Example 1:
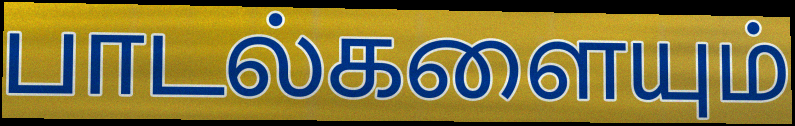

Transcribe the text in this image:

பாடல்களையும்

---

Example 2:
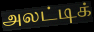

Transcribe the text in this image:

அலட்டிக்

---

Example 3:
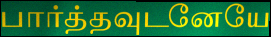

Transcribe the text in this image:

பார்த்தவுடனேயே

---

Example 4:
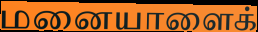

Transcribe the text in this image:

மனையாளைக்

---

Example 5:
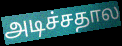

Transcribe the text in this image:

அடிச்சதால